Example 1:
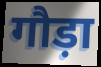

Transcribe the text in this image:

गौड़ा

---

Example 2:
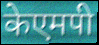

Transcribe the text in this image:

केएमपी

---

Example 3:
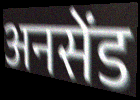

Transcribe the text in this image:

अनसेंड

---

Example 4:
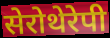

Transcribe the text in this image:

सेरोथेरेपी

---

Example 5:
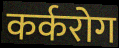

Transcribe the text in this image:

कर्करोग